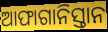
ଆଫାଗାନିସ୍ତାନ